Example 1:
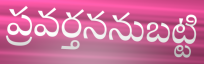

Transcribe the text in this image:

ప్రవర్తననుబట్టి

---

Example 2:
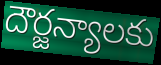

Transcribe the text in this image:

దౌర్జన్యాలకు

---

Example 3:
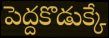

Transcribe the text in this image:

పెద్దకొడుక్కే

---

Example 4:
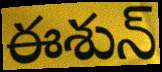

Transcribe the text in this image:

ఈశున్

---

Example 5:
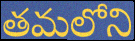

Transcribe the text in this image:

తమలోని